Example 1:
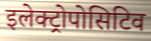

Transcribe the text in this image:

इलेक्ट्रोपोसिटिव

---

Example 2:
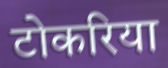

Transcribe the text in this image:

टोकरिया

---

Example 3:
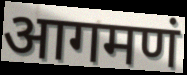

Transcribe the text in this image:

आगमणं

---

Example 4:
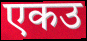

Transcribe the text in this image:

एकउ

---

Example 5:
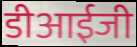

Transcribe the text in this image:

डीआईजी